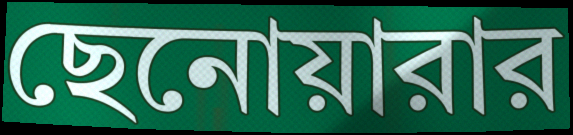
ছেনোয়ারার